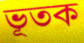
ভূতক